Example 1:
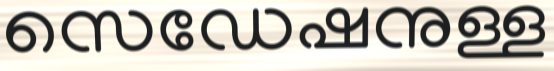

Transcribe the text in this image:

സെഡേഷനുള്ള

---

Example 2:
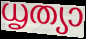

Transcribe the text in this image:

ധൃത്യാ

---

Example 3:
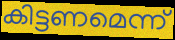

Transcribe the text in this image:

കിട്ടണമെന്ന്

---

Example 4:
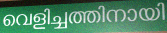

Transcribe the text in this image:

വെളിച്ചത്തിനായി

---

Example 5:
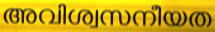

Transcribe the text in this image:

അവിശ്വസനീയത